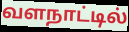
வளநாட்டில்